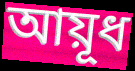
আয়ূধ